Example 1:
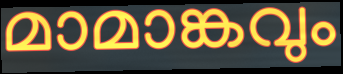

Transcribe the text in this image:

മാമാങ്കവും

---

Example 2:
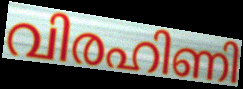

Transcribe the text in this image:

വിരഹിണി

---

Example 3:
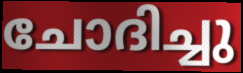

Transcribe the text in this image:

ചോദിച്ചു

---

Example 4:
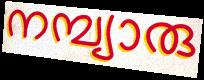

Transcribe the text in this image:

നമ്പ്യാരു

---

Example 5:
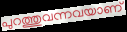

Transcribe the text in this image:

പുറത്തുവന്നവയാണ്